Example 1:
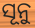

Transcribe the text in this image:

ସୂନୁ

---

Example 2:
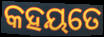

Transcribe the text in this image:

କହୟତେ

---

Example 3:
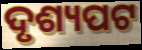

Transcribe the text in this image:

ଦୃଶ୍ୟପଟ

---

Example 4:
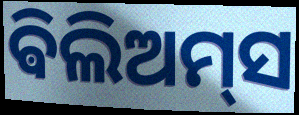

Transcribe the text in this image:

ଵିଲିଅମ୍‌ସ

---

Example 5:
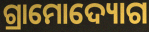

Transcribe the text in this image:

ଗ୍ରାମୋଦ୍ୟୋଗ